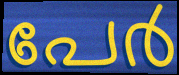
പേർ